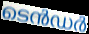
ടെൻഡർ